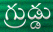
గ్రుడ్డు